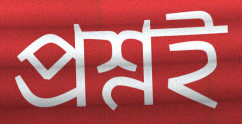
প্রশ্নই